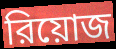
রিয়োজ